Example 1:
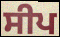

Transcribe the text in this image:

ਸੀਪ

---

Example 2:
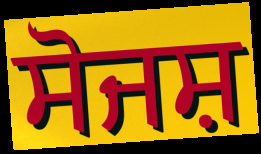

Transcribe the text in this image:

ਸੋਜਸ਼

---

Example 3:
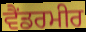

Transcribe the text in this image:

ਵੈਂਡਰਮੀਰ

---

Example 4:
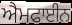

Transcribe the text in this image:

ਐਮਫਾਈਨ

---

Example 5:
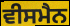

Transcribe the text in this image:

ਵੀਸਮੈਨ